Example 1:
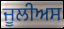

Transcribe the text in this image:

ਜੂਲੀਅਸ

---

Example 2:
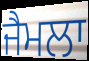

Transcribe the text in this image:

ਜੈਮਲਾ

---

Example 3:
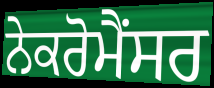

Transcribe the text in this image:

ਨੇਕਰੋਮੈਂਸਰ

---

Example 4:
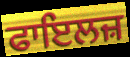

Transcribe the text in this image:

ਫਾਇਲਜ਼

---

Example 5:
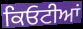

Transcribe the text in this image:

ਕਿਓਟੀਆਂ